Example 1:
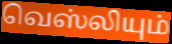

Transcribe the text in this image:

வெஸ்லியும்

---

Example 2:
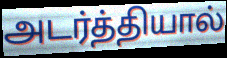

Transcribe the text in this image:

அடர்த்தியால்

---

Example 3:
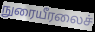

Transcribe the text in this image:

நுரையீரலைச்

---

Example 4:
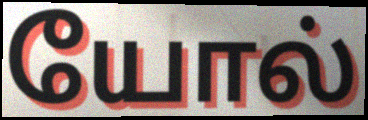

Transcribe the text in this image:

யோல்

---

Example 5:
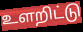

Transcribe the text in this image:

உளறிட்டு